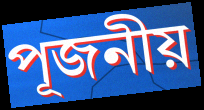
পূজনীয়